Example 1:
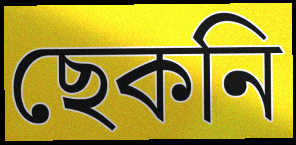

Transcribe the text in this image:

ছেকনি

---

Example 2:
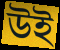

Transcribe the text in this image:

উই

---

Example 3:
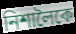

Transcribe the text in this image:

নিশালৈকে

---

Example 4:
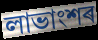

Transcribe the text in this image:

লাভাংশৰ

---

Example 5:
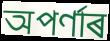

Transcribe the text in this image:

অপৰ্ণাৰ